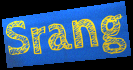
Srang